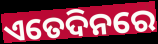
ଏତେଦିନରେ